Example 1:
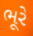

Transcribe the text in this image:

ભૂરે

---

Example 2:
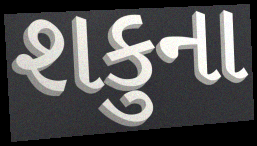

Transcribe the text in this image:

શકુના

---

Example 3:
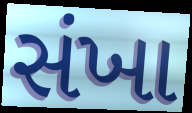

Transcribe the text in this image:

સંખા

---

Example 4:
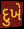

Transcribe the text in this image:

દુખે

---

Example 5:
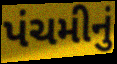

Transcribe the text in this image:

પંચમીનું